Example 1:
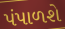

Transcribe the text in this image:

પંપાળશે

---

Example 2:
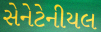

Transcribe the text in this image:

સેનેટેનીયલ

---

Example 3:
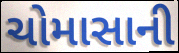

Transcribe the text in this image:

ચોમાસાની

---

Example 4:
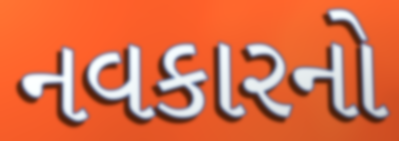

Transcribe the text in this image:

નવકારનો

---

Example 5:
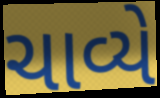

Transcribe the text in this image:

ચાવ્યે